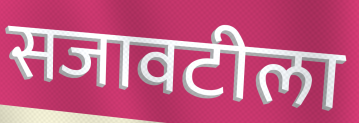
सजावटीला